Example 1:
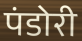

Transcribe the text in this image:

पंडोरी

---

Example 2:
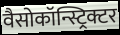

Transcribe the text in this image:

वैसोकॉन्स्ट्रिक्टर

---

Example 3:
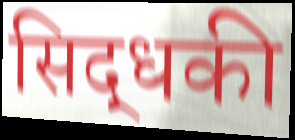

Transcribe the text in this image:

सिद्धकी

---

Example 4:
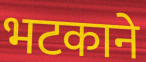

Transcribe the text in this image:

भटकाने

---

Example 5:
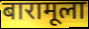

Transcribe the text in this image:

बारामूला